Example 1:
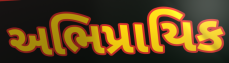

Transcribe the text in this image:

અભિપ્રાયિક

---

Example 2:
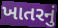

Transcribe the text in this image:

ખાતરનું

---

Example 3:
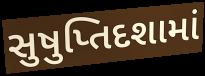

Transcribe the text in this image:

સુષુપ્તિદશામાં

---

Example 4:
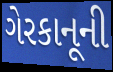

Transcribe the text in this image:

ગેરકાનૂની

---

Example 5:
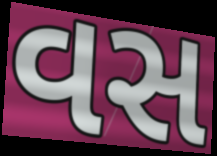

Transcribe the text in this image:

વસ